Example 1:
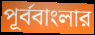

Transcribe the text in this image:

পূর্ববাংলার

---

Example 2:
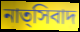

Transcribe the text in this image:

নাত্সিবাদ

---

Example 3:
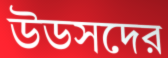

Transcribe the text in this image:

উডসদের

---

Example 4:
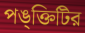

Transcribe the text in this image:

পঙ্‌ক্তিটির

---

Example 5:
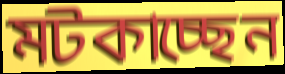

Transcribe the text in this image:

মটকাচ্ছেন